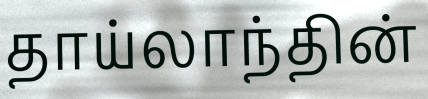
தாய்லாந்தின்